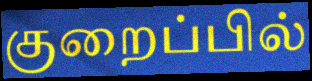
குறைப்பில்